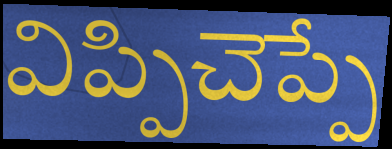
విప్పిచెప్పే